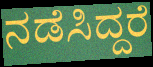
ನಡೆಸಿದ್ದರೆ